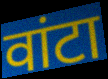
वांटा